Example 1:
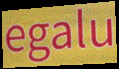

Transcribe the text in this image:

egalu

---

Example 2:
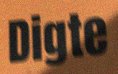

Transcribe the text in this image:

Digte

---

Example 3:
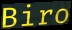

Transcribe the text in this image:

Biro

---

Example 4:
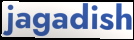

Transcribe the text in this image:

jagadish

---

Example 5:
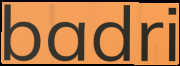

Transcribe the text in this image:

badri